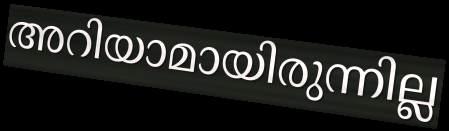
അറിയാമായിരുന്നില്ല